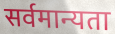
सर्वमान्यता